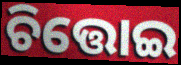
ଚିତ୍ତୋଇ